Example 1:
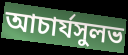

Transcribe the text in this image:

আচার্যসুলভ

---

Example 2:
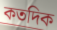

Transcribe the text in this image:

কতদিক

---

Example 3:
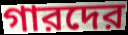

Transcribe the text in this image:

গারদের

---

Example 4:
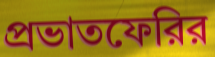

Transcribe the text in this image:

প্রভাতফেরির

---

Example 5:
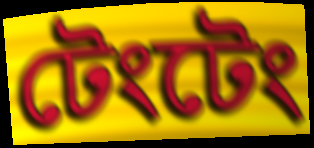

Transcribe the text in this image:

টেংটেং